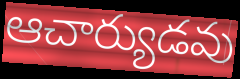
ఆచార్యుడవు